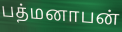
பத்மனாபன்